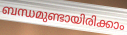
ബന്ധമുണ്ടായിരിക്കാം